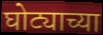
घोट्याच्या